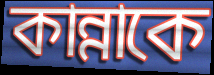
কান্নাকে